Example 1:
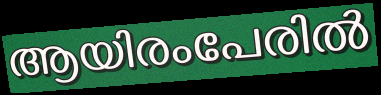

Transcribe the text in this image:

ആയിരംപേരിൽ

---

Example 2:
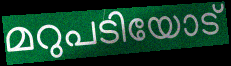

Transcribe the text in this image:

മറുപടിയോട്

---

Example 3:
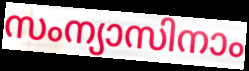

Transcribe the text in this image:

സംന്യാസിനാം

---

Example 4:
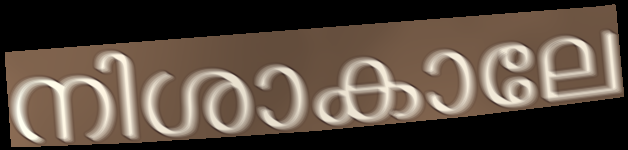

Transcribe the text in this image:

നിശാകാലേ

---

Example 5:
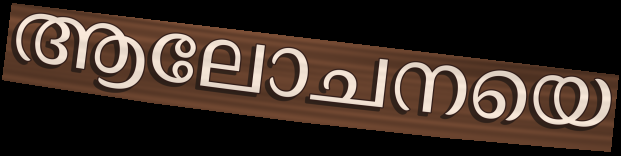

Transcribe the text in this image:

ആലോചനയെ